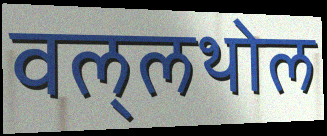
वल्लथोल